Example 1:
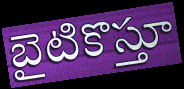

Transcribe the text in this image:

బైటికొస్తూ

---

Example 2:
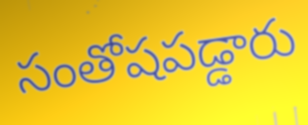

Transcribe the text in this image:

సంతోషపడ్డారు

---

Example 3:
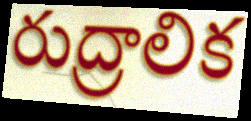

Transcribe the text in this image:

రుద్రాలిక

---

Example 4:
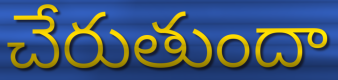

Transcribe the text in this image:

చేరుతుందా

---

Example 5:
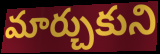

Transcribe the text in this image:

మార్చుకుని